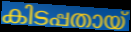
കിടപ്പതായ്